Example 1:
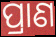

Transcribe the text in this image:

ପ୍ରାଣ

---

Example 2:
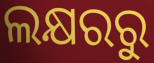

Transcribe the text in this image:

ଲକ୍ଷରରୁ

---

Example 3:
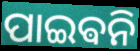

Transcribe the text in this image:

ପାଇଵନି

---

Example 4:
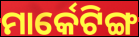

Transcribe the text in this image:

ମାର୍କେଟିଙ୍ଗ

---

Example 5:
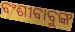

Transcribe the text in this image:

ବଂଶୀବାବୁଙ୍କ